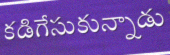
కడిగేసుకున్నాడు